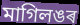
মাগিলঙৰ